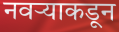
नवऱ्याकडून